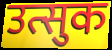
उत्सुक